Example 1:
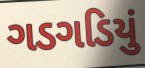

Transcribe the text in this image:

ગડગડિયું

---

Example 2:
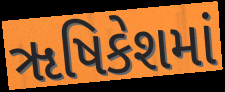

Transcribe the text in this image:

ૠષિકેશમાં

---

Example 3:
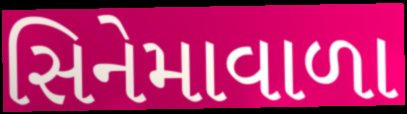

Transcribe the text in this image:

સિનેમાવાળા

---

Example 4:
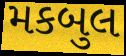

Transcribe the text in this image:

મકબુલ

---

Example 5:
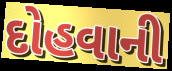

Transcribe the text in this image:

દોહવાની